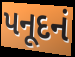
પનૂદનં